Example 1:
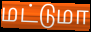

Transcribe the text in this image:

மட்டுமா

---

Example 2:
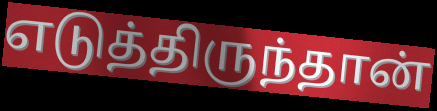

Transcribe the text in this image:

எடுத்திருந்தான்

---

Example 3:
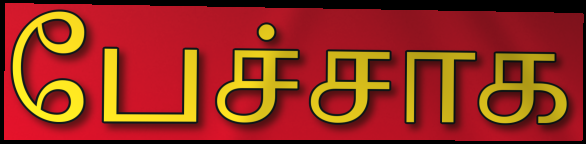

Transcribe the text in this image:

பேச்சாக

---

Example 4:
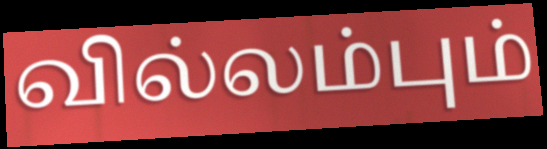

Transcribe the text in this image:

வில்லம்பும்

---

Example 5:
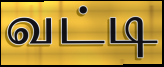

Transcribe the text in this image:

வட்டி